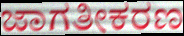
ಜಾಗತೀಕರಣ